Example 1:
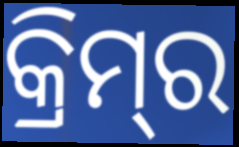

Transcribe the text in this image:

କ୍ରିମ୍‌ର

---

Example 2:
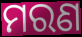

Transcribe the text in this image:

ମରଣ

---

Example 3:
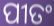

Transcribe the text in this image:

ପୀତଂ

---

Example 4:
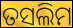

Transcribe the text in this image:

ତସଲିମ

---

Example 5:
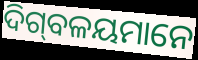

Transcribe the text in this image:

ଦିଗ୍‌ବଳୟମାନେ